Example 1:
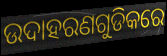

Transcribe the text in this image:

ଉଦାହରଣଗୁଡିକରେ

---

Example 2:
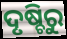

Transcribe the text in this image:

ଦୃଷ୍ଚିରୁ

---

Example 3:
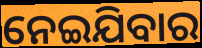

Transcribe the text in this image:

ନେଇଯିବାର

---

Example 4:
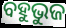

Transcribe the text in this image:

ବହୁଭୁଜ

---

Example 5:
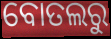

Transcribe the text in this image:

ବୋତଲରୁ